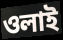
ওলাই